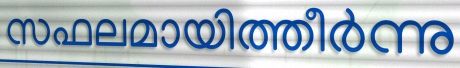
സഫലമായിത്തീർന്നു